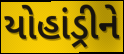
યોહાંડ્રીને